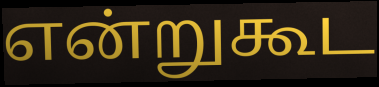
என்றுகூட